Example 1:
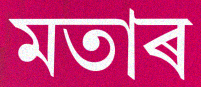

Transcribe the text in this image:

মতাৰ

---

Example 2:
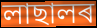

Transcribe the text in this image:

লাছালৰ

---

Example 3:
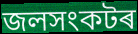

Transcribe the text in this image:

জলসংকটৰ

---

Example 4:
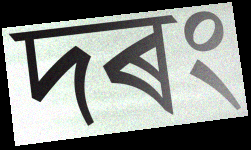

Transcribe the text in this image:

দৰং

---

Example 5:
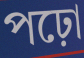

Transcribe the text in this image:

পঢ়ো